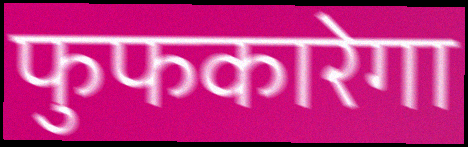
फुफकारेगा